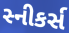
સ્નીકર્સ